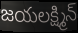
జయలక్ష్మిన్